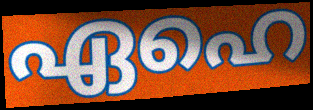
ഏഹെ